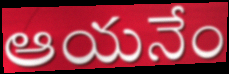
ఆయనేం